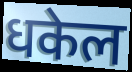
धकेल